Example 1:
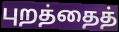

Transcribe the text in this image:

புறத்தைத்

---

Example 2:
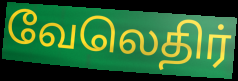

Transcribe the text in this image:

வேலெதிர்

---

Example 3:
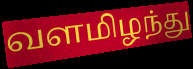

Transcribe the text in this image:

வளமிழந்து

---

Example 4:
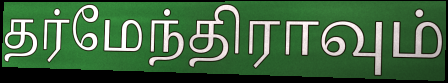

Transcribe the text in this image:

தர்மேந்திராவும்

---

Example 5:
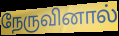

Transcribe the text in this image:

நேருவினால்